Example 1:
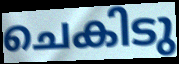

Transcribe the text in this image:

ചെകിടു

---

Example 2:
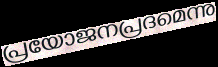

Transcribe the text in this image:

പ്രയോജനപ്രദമെന്നു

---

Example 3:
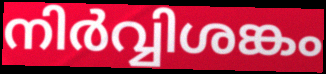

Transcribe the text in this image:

നിർവ്വിശങ്കം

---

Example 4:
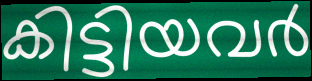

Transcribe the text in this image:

കിട്ടിയവർ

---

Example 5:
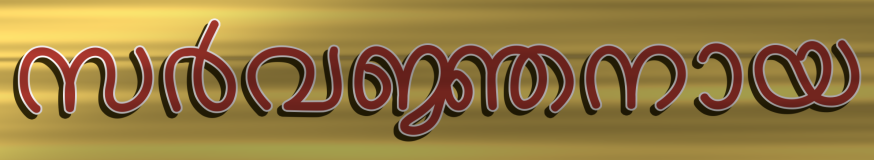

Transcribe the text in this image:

സർവജ്ഞനായ